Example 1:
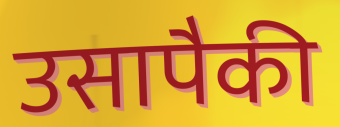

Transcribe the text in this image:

उसापैकी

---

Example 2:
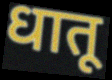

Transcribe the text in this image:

धातू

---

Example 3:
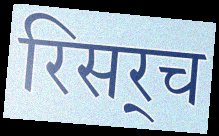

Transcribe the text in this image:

रिसर्च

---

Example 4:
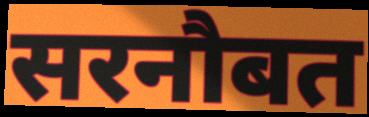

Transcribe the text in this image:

सरनौबत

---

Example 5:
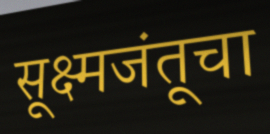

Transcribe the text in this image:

सूक्ष्मजंतूचा